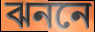
ঝননে